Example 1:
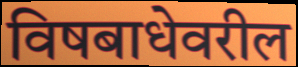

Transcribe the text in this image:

विषबाधेवरील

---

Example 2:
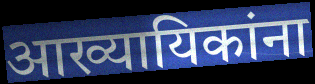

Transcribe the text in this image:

आख्यायिकांना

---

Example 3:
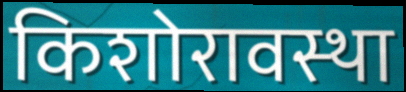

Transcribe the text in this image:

किशोरावस्था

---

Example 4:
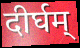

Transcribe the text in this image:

दीर्घम्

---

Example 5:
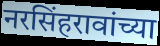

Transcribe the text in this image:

नरसिंहरावांच्या